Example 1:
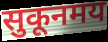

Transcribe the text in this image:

सुकूनमय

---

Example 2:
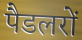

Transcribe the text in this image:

पैडलरों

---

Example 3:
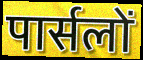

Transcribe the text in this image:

पार्सलों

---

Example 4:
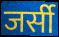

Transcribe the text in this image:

जर्सी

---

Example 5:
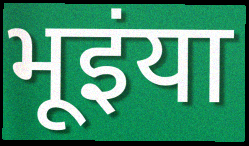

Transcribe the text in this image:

भूइंया